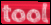
tool